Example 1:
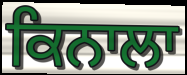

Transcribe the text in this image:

ਕਿਨਾਲਾ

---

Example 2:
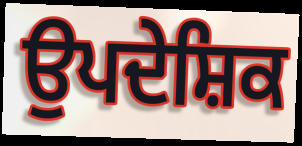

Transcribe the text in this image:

ਉਪਦੇਸ਼ਿਕ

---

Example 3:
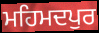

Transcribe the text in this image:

ਮਹਿਮਦਪੁਰ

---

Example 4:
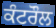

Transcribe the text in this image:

ਕੰਟਰੌਲ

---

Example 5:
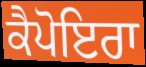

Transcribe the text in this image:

ਕੈਪੋਇਰਾ